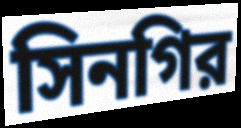
সিনগির